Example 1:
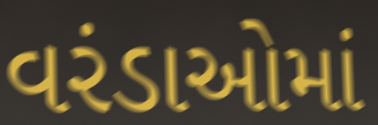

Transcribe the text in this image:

વરંડાઓમાં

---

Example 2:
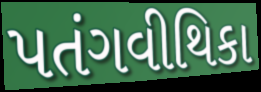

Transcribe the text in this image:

પતંગવીથિકા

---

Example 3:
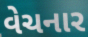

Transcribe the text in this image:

વેચનાર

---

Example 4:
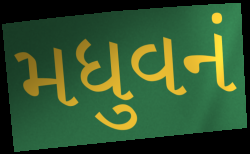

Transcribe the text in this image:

મધુવનં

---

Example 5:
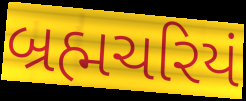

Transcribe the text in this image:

બ્રહ્મચરિયં